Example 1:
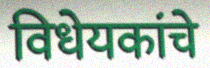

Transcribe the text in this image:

विधेयकांचे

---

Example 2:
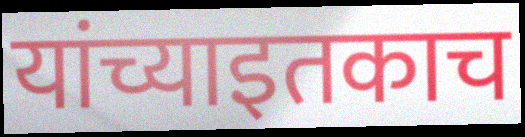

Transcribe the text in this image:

यांच्याइतकाच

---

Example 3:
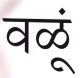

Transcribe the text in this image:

वळूं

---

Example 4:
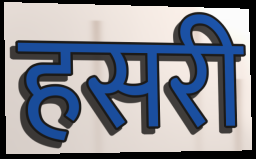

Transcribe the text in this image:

हसरी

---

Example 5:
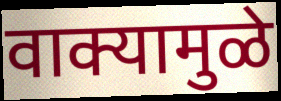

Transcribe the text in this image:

वाक्यामुळे